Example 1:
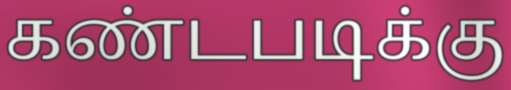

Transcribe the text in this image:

கண்டபடிக்கு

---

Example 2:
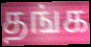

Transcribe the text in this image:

தங்க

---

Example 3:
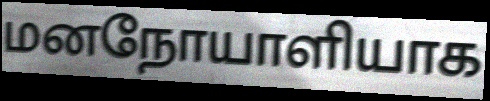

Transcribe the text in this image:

மனநோயாளியாக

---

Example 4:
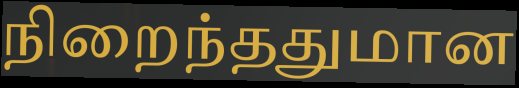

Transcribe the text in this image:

நிறைந்ததுமான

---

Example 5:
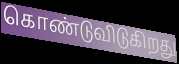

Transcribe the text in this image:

கொண்டுவிடுகிறது